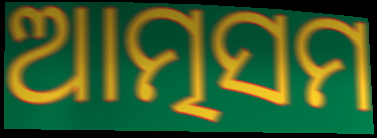
ଆତ୍ମସମ